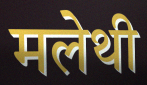
मलेथी